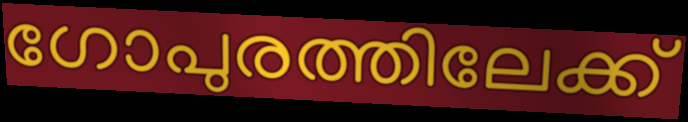
ഗോപുരത്തിലേക്ക്